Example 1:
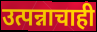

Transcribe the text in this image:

उत्पन्नाचाही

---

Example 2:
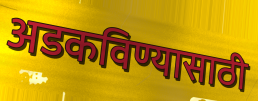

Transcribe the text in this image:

अडकविण्यासाठी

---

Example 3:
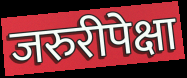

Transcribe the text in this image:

जरुरीपेक्षा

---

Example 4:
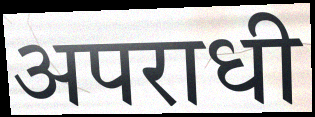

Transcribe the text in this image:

अपराधी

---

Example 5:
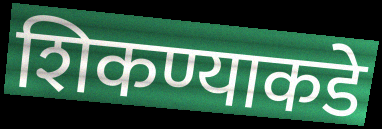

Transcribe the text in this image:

शिकण्याकडे